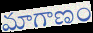
మాగాణం